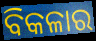
ବିକଳାର